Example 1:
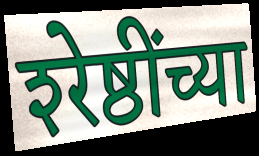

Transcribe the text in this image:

श्रेष्ठींच्या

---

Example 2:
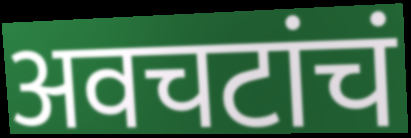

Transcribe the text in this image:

अवचटांचं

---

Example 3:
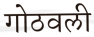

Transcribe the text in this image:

गोठवली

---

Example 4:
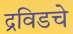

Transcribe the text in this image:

द्रविडचे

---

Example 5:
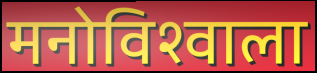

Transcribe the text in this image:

मनोविश्वाला